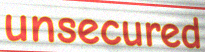
unsecured